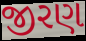
જીરણ